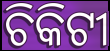
ଚିକିଟୀ